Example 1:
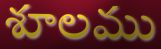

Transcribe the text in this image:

శూలము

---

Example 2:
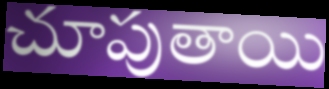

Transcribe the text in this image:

చూపుతాయి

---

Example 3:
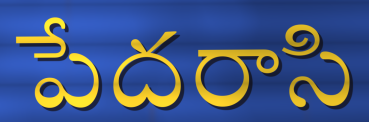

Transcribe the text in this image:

పేదరాసి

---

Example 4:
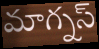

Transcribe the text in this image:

మాగ్నస్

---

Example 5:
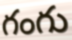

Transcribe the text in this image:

గంగు